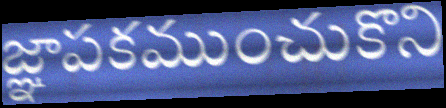
జ్ఞాపకముంచుకొని